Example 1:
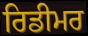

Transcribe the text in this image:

ਰਿਡੀਮਰ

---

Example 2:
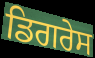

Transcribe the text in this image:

ਡਿਗਰੇਸ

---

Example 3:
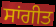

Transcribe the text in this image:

ਸਾਂਗੀਤ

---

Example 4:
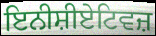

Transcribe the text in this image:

ਇਨੀਸ਼ੀਏਟਿਵਜ਼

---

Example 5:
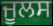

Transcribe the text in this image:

ਜੂਲਸ